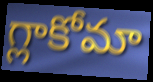
గ్లాకోమా